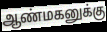
ஆண்மகனுக்கு